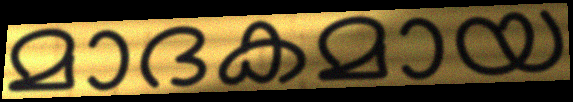
മാദകമായ